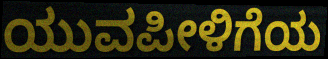
ಯುವಪೀಳಿಗೆಯ